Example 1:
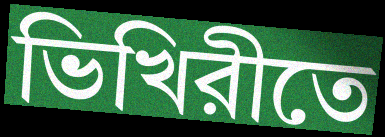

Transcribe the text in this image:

ভিখিরীতে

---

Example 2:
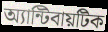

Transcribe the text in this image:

অ্যান্টিবায়টিক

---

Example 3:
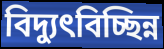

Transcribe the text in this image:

বিদ্যুৎবিচ্ছিন্ন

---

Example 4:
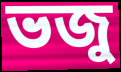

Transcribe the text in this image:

ভজু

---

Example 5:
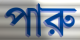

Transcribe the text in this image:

পারু